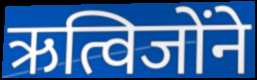
ऋत्विजोंने